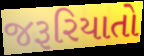
જરૂરિયાતો